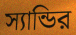
স্যান্ডির